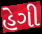
હેગી